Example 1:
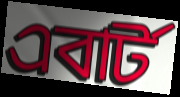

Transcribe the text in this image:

এবার্ট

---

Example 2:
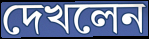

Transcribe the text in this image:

দেখলেন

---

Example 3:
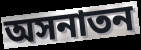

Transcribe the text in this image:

অসনাতন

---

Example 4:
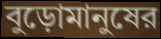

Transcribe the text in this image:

বুড়োমানুষের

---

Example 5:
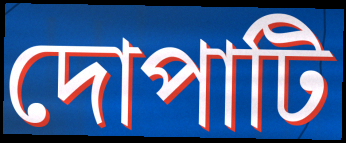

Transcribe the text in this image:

দোপাটি